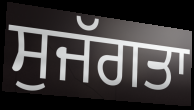
ਸੁਜੱਗਤਾ